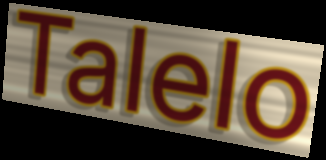
Talelo